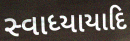
સ્વાધ્યાયાદિ